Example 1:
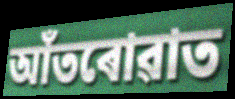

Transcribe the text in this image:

আঁতৰোৱাত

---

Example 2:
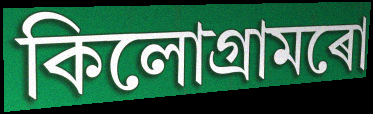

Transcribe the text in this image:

কিলোগ্ৰামৰো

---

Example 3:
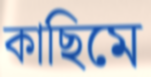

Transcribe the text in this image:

কাছিমে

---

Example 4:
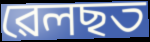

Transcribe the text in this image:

ৱেলছত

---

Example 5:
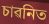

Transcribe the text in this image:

চাৱনিত